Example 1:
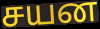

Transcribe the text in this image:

சயன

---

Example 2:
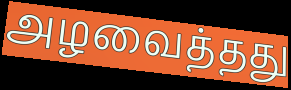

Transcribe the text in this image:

அழவைத்தது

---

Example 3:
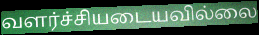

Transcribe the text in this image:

வளர்ச்சியடையவில்லை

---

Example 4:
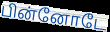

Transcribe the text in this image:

பின்னோடே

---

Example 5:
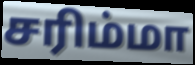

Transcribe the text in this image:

சரிம்மா